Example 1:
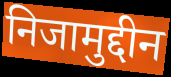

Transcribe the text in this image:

निजामुद्दीन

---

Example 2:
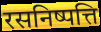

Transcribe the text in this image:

रसनिष्पत्ति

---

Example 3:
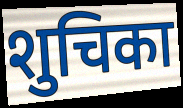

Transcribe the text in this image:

शुचिका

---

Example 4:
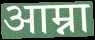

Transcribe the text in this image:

आम्ना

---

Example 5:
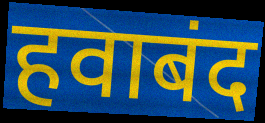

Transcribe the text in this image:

हवाबंद